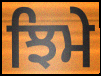
ਝਿਮੇ